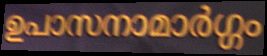
ഉപാസനാമാർഗ്ഗം